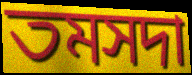
তমসদা